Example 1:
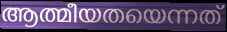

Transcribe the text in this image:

ആത്മീയതയെന്നത്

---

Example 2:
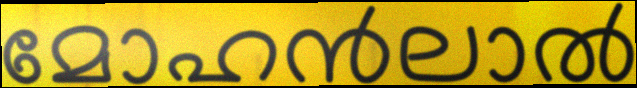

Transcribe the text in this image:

മോഹൻലാൽ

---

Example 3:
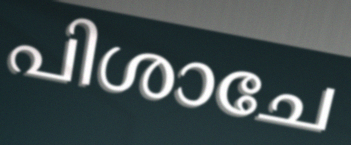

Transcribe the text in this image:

പിശാചേ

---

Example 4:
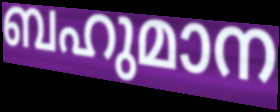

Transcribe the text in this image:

ബഹുമാന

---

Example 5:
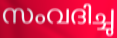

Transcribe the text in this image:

സംവദിച്ചു